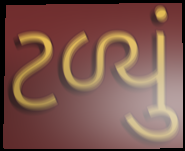
ટળ્યું